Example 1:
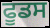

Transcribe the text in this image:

ਫੂਡਸ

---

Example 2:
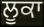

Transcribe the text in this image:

ਲੂਕਾ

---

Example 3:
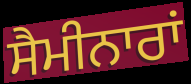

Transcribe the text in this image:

ਸੈਮੀਨਾਰਾਂ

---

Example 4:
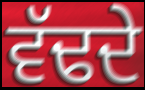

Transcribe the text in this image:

ਵੱਢਦੇ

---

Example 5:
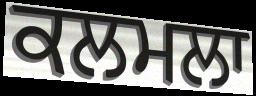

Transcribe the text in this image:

ਕਲਮਲਾ